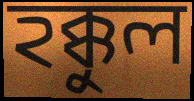
হক্কুল